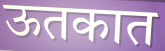
ऊतकात